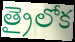
త్రైలోక